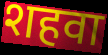
शहवा